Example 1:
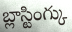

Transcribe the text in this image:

బ్లాస్టింగ్కు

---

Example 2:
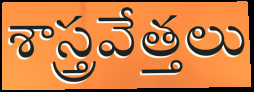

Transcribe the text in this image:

శాస్త్రవేత్తలు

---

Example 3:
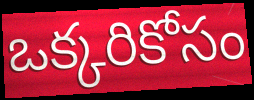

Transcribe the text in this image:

ఒక్కరికోసం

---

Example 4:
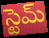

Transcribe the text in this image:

స్టెమ్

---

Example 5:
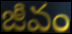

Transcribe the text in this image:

జీవం